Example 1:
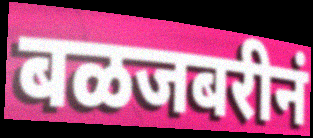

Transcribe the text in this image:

बळजबरीनं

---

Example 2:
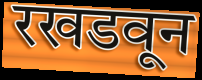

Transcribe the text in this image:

रखडवून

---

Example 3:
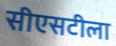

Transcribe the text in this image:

सीएसटीला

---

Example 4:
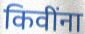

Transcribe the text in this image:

किवींना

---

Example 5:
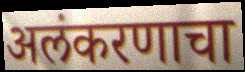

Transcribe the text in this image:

अलंकरणाचा